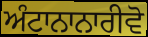
ਅੰਟਾਨਾਨਾਰੀਵੋ